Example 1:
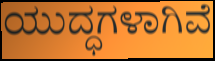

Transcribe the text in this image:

ಯುದ್ಧಗಳಾಗಿವೆ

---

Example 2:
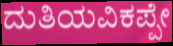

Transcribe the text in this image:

ದುತಿಯವಿಕಪ್ಪೇ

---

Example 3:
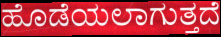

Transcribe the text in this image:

ಹೊಡೆಯಲಾಗುತ್ತದೆ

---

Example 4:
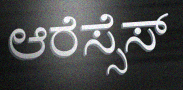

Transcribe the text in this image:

ಆರೆಸ್ಸೆಸ್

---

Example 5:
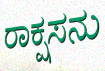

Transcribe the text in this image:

ರಾಕ್ಷಸನು